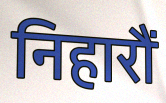
निहारौं